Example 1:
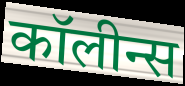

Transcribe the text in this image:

कॉलीन्स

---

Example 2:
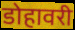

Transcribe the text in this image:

डोहावरी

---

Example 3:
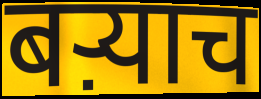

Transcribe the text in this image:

बऱ्‍याच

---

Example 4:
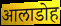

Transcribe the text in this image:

आलाडोह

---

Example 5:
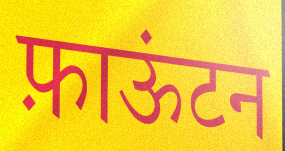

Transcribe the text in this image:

फ़ाऊंटन